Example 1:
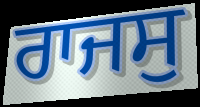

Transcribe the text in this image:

ਰਾਜਸੁ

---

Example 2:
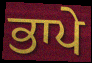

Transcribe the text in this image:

ਭਾਪੇ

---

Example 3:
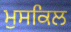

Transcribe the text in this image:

ਮੁਸਕਿਲ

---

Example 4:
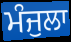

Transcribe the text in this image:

ਮੰਜੁਲਾ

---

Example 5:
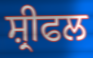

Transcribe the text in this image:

ਸ਼੍ਰੀਫਲ